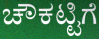
ಚೌಕಟ್ಟಿಗೆ